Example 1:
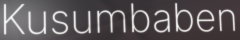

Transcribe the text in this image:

Kusumbaben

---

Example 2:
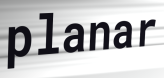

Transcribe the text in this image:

planar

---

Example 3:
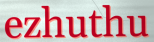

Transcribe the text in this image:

ezhuthu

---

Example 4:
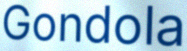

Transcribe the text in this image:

Gondola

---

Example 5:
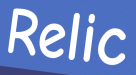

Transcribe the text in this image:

Relic